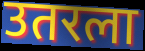
उतरला